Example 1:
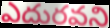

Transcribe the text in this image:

ఎదురవని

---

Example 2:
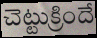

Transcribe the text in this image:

చెట్టుక్రిందే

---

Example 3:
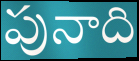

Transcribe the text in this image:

పునాది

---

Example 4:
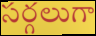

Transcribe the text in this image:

సర్గలుగా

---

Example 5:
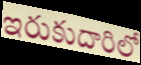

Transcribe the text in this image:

ఇరుకుదారిలో